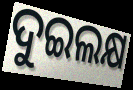
ଦୁଇଲକ୍ଷ